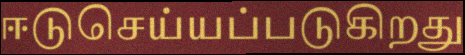
ஈடுசெய்யப்படுகிறது